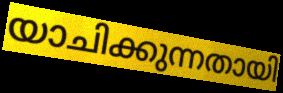
യാചിക്കുന്നതായി